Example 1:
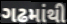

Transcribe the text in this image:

ગઢમાંથી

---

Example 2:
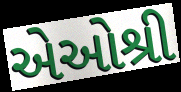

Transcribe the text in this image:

એઓશ્રી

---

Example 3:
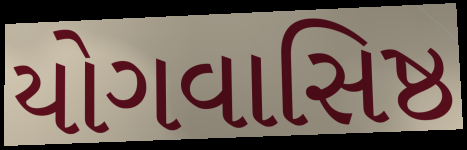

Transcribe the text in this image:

યોગવાસિષ્ઠ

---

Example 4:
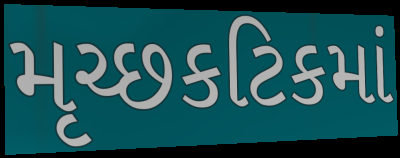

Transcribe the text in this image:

મૃચ્છકટિકમાં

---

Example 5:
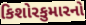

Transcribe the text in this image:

કિશોરકુમારનો